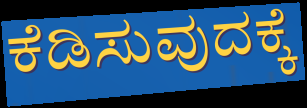
ಕೆಡಿಸುವುದಕ್ಕೆ